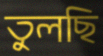
তুলছি